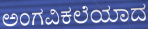
ಅಂಗವಿಕಲೆಯಾದ